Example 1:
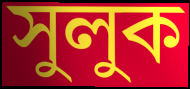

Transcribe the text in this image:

সুলুক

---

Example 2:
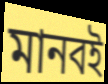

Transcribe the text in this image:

মানবই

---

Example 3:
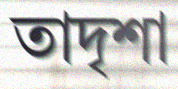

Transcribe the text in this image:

তাদৃশা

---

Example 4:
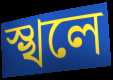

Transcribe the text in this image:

স্খলে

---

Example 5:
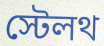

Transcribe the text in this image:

স্টেলথ